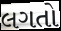
લગતો